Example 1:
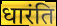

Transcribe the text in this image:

धारंति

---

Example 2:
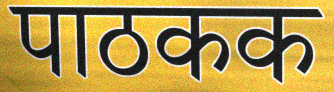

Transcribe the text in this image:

पाठकक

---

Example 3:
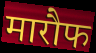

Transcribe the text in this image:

मारौफ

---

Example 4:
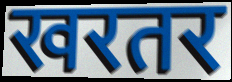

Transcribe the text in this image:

खरतर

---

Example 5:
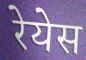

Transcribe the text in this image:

रेयेस